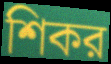
শিকর